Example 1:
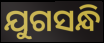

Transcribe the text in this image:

ଯୁଗସନ୍ଧି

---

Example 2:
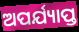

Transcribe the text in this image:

ଅପର୍ଯ୍ୟାପ୍ତ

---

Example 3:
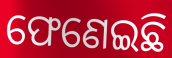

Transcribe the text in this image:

ଫେଣେଇଛି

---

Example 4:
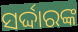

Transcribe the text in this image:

ସର୍ଦ୍ଦାରଙ୍କ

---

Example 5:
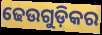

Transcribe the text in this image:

ଢେଉଗୁଡ଼ିକର